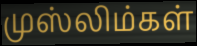
முஸ்லிம்கள்